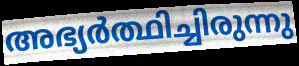
അഭ്യർത്ഥിച്ചിരുന്നു